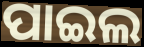
ପାଇଲ